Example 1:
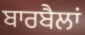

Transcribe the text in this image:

ਬਾਰਬੈਲਾਂ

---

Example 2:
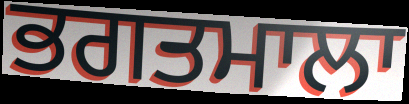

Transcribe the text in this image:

ਭਗਤਮਾਲਾ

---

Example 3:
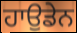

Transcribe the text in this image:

ਹਾਉਡੇਨ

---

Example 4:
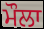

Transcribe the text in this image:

ਮੌਲਾ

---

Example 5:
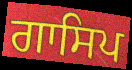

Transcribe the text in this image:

ਗਾਸਿਪ